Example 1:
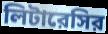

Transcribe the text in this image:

লিটারেসির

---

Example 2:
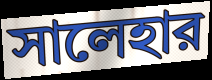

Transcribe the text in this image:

সালেহার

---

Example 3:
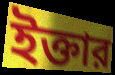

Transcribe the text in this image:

ইক্তার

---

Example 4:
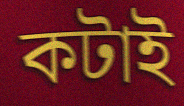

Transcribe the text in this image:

কটাই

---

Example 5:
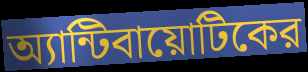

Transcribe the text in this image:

অ্যান্টিবায়োটিকের